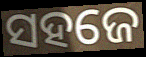
ସହଜେ